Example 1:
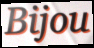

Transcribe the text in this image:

Bijou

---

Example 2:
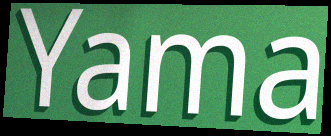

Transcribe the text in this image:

Yama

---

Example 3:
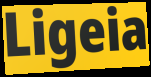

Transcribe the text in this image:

Ligeia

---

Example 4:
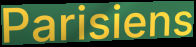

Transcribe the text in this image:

Parisiens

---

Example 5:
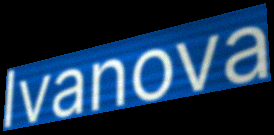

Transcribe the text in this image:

Ivanova